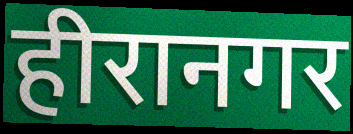
हीरानगर